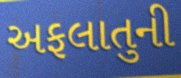
અફલાતુની